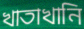
খাতাখানি